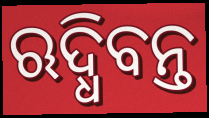
ଋଦ୍ଧିବନ୍ତ